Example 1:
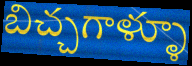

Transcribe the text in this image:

బిచ్చగాళ్ళూ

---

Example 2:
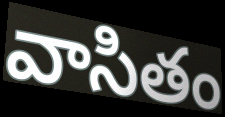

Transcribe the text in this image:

వాసితం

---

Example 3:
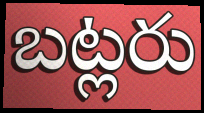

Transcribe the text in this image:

బట్లరు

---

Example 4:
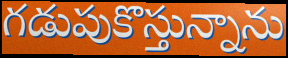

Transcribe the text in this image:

గడుపుకొస్తున్నాను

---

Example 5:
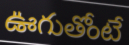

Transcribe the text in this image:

ఊగుతోంటే